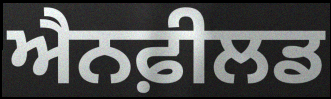
ਐਨਫ਼ੀਲਡ